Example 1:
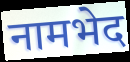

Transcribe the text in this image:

नामभेद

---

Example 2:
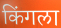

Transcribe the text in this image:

किंगला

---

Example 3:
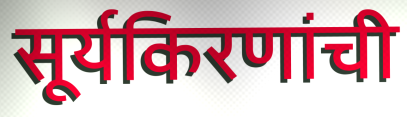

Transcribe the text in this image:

सूर्यकिरणांची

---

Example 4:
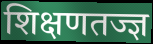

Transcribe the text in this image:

शिक्षणतज्ज्ञ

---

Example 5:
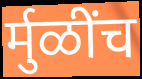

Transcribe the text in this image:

र्मुळींच